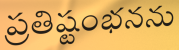
ప్రతిష్టంభనను